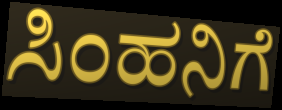
ಸಿಂಹನಿಗೆ